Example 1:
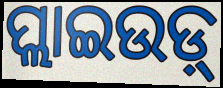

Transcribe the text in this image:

ପ୍ଲାଇଉଡ଼୍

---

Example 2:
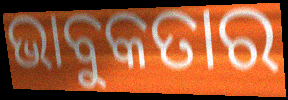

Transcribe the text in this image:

ଭାବୁକତାର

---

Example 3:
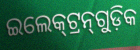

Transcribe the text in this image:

ଇଲେକ୍‍ଟ୍ରନ୍‍ଗୁଡ଼ିକ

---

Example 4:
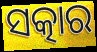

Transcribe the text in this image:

ସତ୍କାର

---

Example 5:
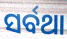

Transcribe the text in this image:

ସର୍ବଥା